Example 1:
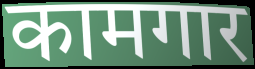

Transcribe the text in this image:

कामगार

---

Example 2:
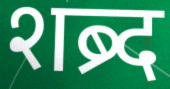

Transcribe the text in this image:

शब्र्द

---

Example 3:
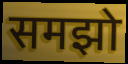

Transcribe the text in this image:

समझो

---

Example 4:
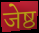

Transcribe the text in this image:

जेष्ठ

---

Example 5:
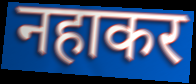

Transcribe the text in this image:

नहाकर